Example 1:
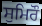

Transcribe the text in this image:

ਸੁਮਿਰੌ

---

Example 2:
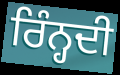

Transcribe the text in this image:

ਰਿੰਨ੍ਹਦੀ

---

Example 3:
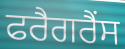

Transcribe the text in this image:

ਫਰੈਗਰੈਂਸ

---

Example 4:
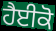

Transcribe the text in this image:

ਹੈਈਕੋ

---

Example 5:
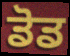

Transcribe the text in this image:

ਡੋਡ